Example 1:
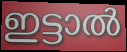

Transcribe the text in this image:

ഇട്ടാൽ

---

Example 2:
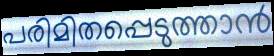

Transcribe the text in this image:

പരിമിതപ്പെടുത്താൻ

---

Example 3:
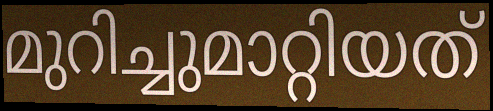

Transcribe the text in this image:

മുറിച്ചുമാറ്റിയത്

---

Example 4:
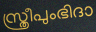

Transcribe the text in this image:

സ്ത്രീപുംഭിദാ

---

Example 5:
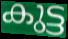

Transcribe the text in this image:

കുട്ട